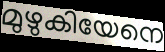
മുഴുകിയേനെ